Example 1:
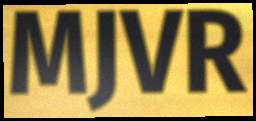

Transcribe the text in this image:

MJVR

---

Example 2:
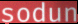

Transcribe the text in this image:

sodun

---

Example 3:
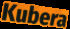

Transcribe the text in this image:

Kubera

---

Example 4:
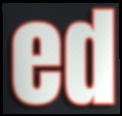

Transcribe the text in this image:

ed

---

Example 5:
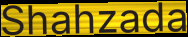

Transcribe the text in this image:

Shahzada